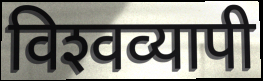
विश्‍वव्यापी